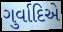
ગુર્વાદિએ